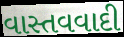
વાસ્તવવાદી